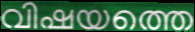
വിഷയത്തെ